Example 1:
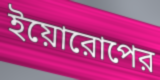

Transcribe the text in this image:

ইয়োরোপের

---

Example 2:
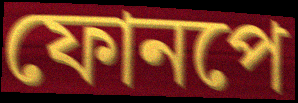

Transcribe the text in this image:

ফোনপে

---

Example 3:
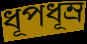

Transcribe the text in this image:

ধূপধূম্র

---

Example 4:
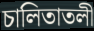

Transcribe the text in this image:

চালিতাতলী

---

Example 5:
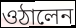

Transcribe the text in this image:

ওঠালেন